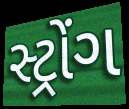
સ્ટ્રોંગ